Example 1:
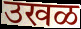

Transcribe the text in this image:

उखळ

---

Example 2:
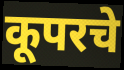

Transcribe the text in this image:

कूपरचे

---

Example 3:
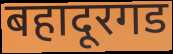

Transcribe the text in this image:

बहादूरगड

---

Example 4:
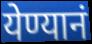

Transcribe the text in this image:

येण्यानं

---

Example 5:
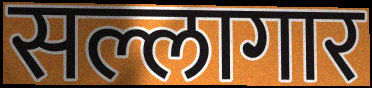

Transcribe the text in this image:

सल्‍लागार